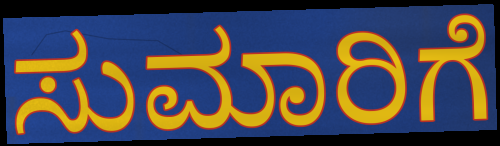
ಸುಮಾರಿಗೆ